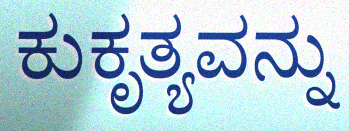
ಕುಕೃತ್ಯವನ್ನು